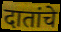
दातांचे